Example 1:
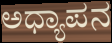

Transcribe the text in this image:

ಅಧ್ಯಾಪನ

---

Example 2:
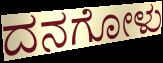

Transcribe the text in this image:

ದನಗೋಳು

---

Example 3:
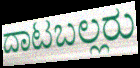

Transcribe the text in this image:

ದಾಟಬಲ್ಲರು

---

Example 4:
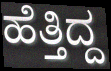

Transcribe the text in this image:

ಹೆತ್ತಿದ್ದ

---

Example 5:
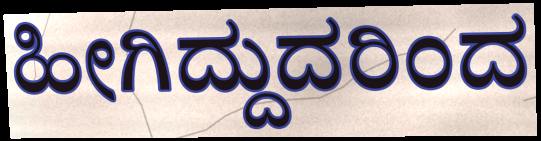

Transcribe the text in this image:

ಹೀಗಿದ್ದುದರಿಂದ